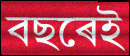
বছৰেই